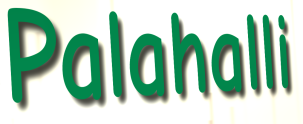
Palahalli